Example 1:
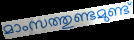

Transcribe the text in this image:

മാംസത്തുണ്ടമുണ്ട്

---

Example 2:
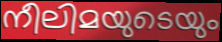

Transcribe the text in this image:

നീലിമയുടെയും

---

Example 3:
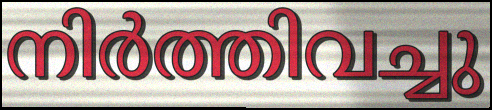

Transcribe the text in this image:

നിർത്തിവച്ചു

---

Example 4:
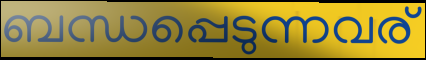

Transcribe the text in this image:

ബന്ധപ്പെടുന്നവര്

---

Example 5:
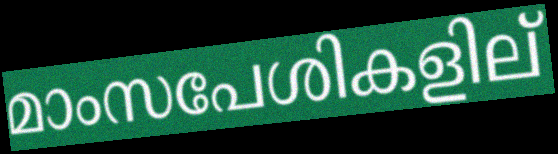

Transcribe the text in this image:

മാംസപേശികളില്